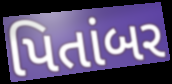
પિતાંબર